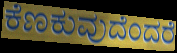
ಕೆಣಕುವುದೆಂದರೆ